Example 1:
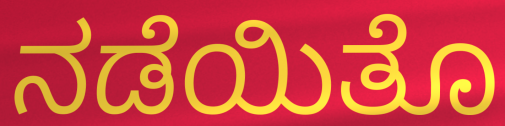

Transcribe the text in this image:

ನಡೆಯಿತೊ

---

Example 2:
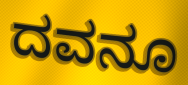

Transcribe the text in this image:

ದವನೂ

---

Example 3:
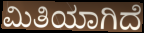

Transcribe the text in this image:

ಮಿತಿಯಾಗಿದೆ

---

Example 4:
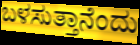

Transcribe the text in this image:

ಬಳಸುತ್ತಾನೆಂದು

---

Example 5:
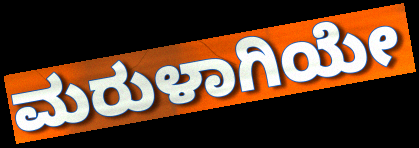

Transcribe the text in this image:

ಮರುಳಾಗಿಯೇ